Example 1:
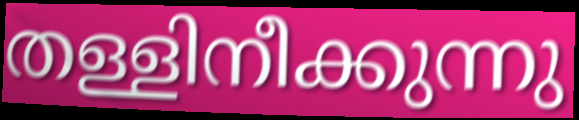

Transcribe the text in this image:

തള്ളിനീക്കുന്നു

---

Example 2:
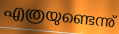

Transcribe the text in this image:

എത്രയുണ്ടെന്നു്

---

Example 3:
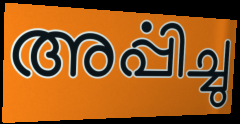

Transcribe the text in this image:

അൎപ്പിച്ചു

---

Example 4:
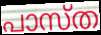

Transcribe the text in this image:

പാസ്ത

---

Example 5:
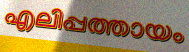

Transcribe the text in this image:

എലിപ്പത്തായം